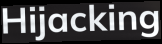
Hijacking